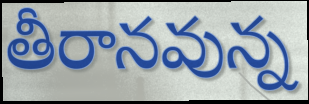
తీరానవున్న